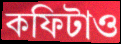
কফিটাও